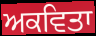
ਅਕਵਿਤਾ